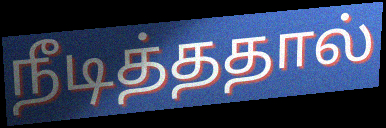
நீடித்ததால்